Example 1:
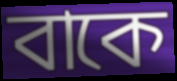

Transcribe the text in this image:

বাকে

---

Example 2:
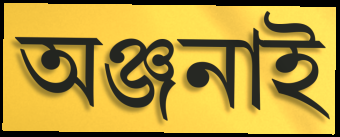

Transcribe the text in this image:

অঞ্জনাই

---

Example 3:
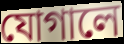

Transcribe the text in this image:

যোগালে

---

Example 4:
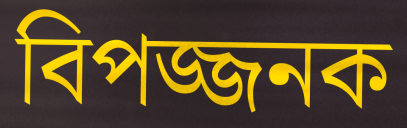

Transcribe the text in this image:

বিপজ্জনক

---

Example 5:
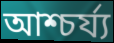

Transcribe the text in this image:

আশ্চৰ্য্য